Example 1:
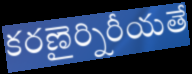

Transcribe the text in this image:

కరణైర్నిరీయతే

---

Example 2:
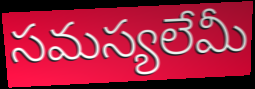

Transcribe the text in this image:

సమస్యలేమీ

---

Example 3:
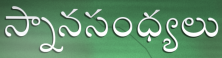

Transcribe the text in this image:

స్నానసంధ్యలు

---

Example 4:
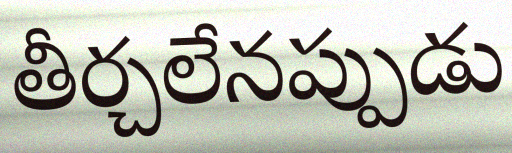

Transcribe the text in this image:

తీర్చలేనప్పుడు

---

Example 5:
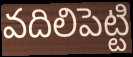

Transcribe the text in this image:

వదిలిపెట్టి